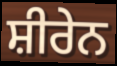
ਸ਼ੀਰੇਨ